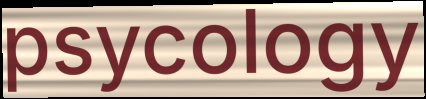
psycology